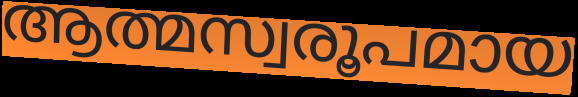
ആത്മസ്വരൂപമായ